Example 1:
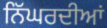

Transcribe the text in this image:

ਨਿੱਘਰਦੀਆਂ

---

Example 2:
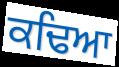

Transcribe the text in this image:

ਕਢਿਆ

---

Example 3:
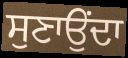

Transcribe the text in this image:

ਸੁਣਾਉਂਦਾ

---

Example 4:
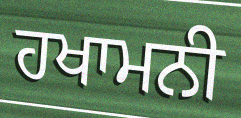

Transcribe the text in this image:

ਹਖਾਮਨੀ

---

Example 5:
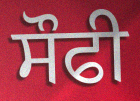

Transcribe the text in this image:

ਸੌਫੀ